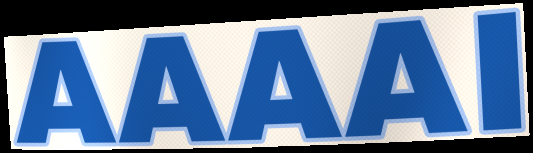
AAAAI